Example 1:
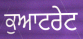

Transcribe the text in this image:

ਕੁਆਟਰੇਟ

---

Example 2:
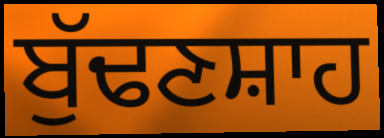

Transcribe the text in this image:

ਬੁੱਢਣਸ਼ਾਹ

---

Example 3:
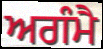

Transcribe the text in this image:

ਅਗੰਮੈ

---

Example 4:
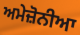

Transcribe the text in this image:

ਅਮੇਜ਼ੋਨੀਆ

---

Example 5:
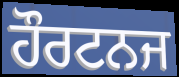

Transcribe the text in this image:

ਹੌਰਟਨਜ